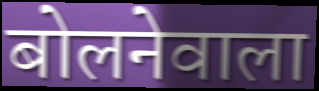
बोलनेवाला